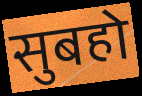
सुबहो